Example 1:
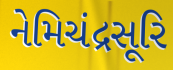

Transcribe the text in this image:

નેમિચંદ્રસૂરિ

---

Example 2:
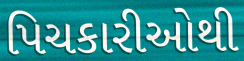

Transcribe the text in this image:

પિચકારીઓથી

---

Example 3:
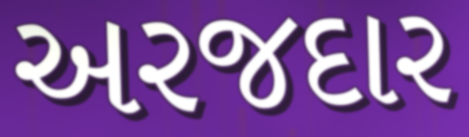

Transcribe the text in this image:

અરજદાર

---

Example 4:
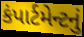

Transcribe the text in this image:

કંપાર્ટમેન્ટનું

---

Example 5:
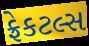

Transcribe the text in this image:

ફ્રેકટલ્સ